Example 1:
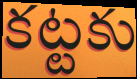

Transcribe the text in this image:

కట్టకు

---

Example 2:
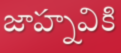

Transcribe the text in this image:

జాహ్నవికి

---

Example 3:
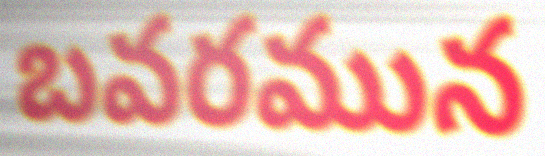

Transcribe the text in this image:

బవరమున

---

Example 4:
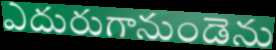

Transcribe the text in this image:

ఎదురుగానుండెను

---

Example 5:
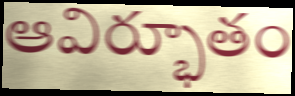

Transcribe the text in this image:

ఆవిర్భూతం